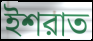
ইশরাত